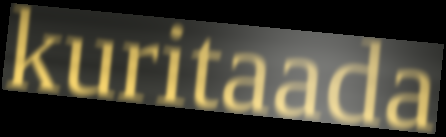
kuritaada